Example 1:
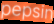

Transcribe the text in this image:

pepsin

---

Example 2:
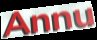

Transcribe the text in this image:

Annu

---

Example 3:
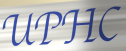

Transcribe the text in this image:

UPHC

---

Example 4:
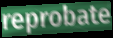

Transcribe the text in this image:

reprobate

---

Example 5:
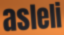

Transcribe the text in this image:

asleli